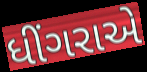
ધીંગરાએ